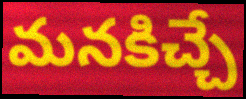
మనకిచ్చే